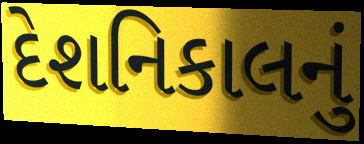
દેશનિકાલનું